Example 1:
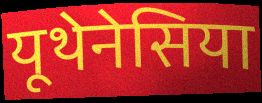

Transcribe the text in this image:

यूथेनेसिया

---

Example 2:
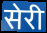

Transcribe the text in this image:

सेरी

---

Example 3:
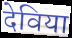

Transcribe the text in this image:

देविया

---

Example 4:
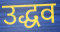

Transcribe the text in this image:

उद्धव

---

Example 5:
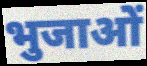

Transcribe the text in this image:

भुजाओं